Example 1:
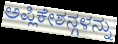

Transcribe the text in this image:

ಅಪ್ಲಿಕೇಶನ್ಗಳನ್ನು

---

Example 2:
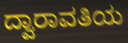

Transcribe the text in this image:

ದ್ವಾರಾವತಿಯ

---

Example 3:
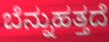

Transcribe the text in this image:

ಬೆನ್ನುಹತ್ತದೆ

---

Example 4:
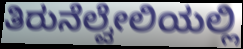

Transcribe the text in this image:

ತಿರುನೆಲ್ವೇಲಿಯಲ್ಲಿ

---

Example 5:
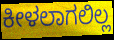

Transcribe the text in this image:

ಕೀಳಲಾಗಲಿಲ್ಲ